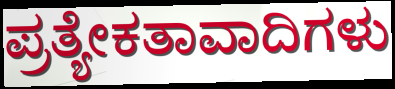
ಪ್ರತ್ಯೇಕತಾವಾದಿಗಳು